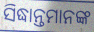
ସିଦ୍ଧାନ୍ତମାନଙ୍କ